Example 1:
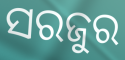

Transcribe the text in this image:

ସରଜୁର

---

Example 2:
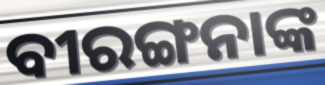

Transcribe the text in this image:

ବୀରଙ୍ଗନାଙ୍କ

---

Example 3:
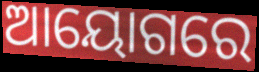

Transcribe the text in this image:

ଆୟୋଗରେ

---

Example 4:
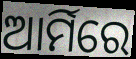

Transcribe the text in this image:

ଆର୍ମିରେ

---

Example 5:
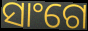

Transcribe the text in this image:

ସାଂଗେ